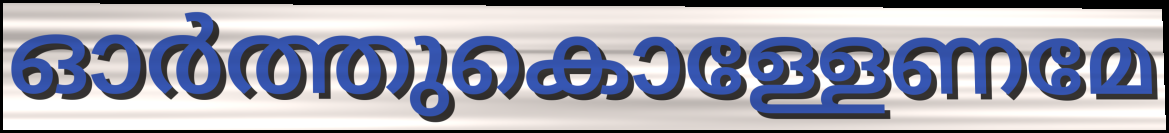
ഓർത്തുകൊള്ളേണമേ